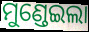
ମୁଣ୍ଡେଇଲା